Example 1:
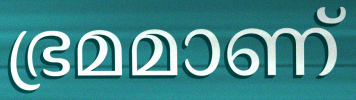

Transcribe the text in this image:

ഭ്രമമാണ്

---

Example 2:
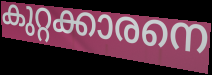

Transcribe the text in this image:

കുറ്റക്കാരനെ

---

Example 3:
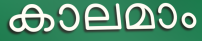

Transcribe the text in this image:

കാലമാം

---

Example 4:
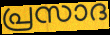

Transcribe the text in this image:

പ്രസാദ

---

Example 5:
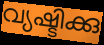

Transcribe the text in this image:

വ്യഷ്ടിക്കു